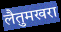
लैतुमखरा